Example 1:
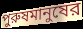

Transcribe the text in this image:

পুরুষমানুষের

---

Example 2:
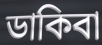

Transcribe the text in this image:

ডাকিবা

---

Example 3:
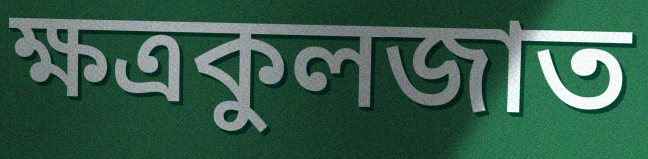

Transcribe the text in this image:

ক্ষত্রকুলজাত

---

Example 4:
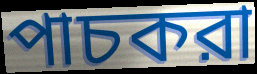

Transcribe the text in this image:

পাচকরা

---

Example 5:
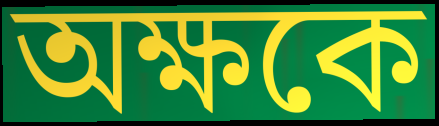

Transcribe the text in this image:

অক্ষকে